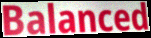
Balanced